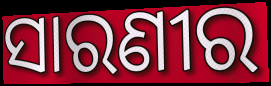
ସାରଣୀର